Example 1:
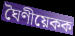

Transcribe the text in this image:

ঘৈণীয়েকক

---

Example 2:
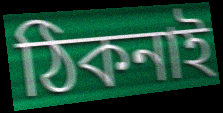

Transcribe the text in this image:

ঠিকনাই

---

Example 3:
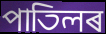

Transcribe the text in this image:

পাতিলৰ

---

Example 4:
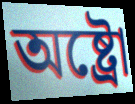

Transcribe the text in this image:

অষ্ট্ৰো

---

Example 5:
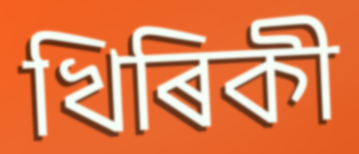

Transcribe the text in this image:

খিৰিকী